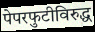
पेपरफुटीविरुद्ध